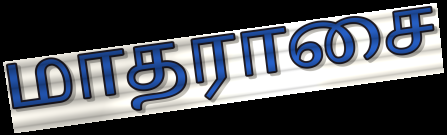
மாதராசை